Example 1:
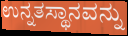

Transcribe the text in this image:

ಉನ್ನತಸ್ಥಾನವನ್ನು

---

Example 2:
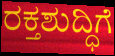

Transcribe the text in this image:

ರಕ್ತಶುದ್ಧಿಗೆ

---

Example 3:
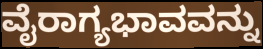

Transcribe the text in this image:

ವೈರಾಗ್ಯಭಾವವನ್ನು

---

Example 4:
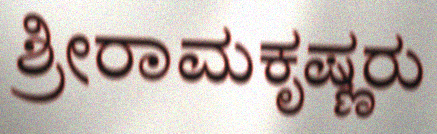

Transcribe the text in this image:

ಶ್ರೀರಾಮಕೃಷ್ಣರು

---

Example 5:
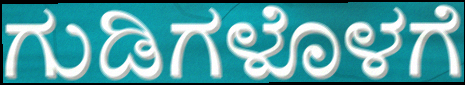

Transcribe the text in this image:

ಗುಡಿಗಳೊಳಗೆ